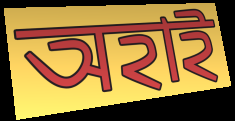
অহাই